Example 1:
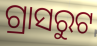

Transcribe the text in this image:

ଗ୍ରାସରୁଟ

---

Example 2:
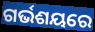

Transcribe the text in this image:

ଗର୍ଭଶୟରେ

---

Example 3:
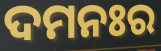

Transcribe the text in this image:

ଦମନଃର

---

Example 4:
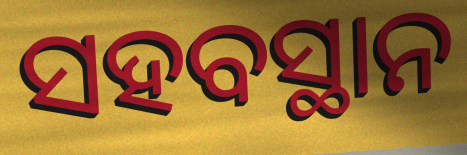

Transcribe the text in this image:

ସହବସ୍ଥାନ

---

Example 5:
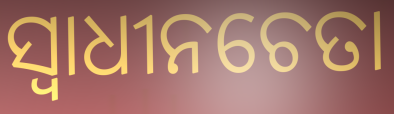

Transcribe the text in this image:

ସ୍ୱାଧୀନଚେତା